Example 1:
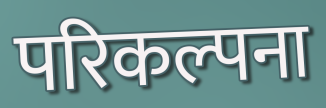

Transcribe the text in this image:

परिकल्पना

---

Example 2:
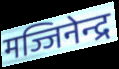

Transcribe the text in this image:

मज्जिनेन्द्र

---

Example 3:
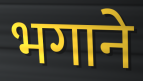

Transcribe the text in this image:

भगाने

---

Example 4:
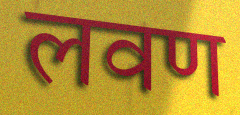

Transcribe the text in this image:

लवण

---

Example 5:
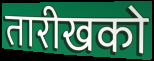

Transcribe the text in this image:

तारीखको